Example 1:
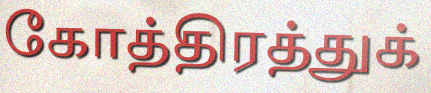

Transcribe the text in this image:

கோத்திரத்துக்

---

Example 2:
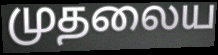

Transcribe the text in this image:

முதலைய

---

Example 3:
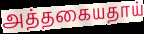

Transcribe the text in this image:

அத்தகையதாய்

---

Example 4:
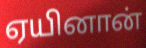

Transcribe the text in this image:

ஏயினான்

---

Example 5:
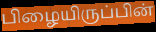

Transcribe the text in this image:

பிழையிருப்பின்